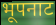
भूपनाट